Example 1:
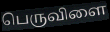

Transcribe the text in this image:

பெருவிளை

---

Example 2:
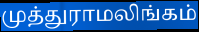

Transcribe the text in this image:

முத்துராமலிங்கம்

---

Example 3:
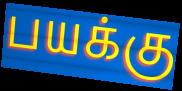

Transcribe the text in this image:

பயக்கு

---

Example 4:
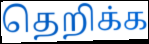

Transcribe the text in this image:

தெறிக்க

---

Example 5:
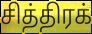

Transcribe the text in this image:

சித்திரக்